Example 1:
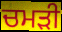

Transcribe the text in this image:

ਚਮਡ਼ੀ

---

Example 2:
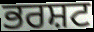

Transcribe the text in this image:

ਭਰਸ਼ਟ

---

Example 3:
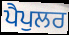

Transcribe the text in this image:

ਪੈਪੁਲਰ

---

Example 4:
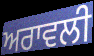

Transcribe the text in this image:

ਅਰਾਵਲੀ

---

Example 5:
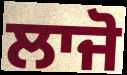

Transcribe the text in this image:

ਲਾਜੋ